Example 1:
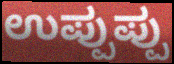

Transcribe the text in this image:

ಉಪ್ಪುಪ್ಪು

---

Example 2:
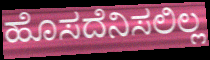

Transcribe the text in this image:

ಹೊಸದೆನಿಸಲಿಲ್ಲ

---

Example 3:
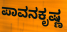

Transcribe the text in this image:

ಪಾವನಕೃಷ್ಣ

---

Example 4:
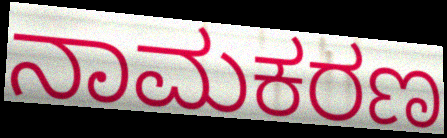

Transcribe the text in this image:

ನಾಮಕರಣ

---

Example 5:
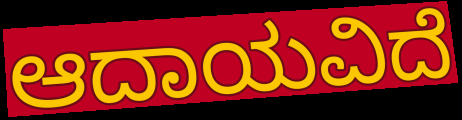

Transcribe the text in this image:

ಆದಾಯವಿದೆ